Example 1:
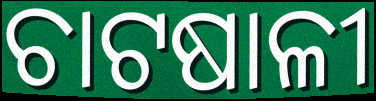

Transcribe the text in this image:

ଚାଟଷାଳୀ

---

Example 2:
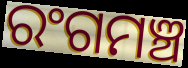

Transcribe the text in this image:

ରଂଗମଞ୍ଚ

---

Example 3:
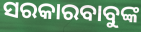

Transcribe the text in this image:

ସରକାରବାବୁଙ୍କ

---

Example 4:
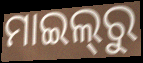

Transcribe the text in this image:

ମାଇଲ୍‌ରୁ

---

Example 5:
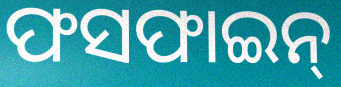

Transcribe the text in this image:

ଫସଫାଇନ୍